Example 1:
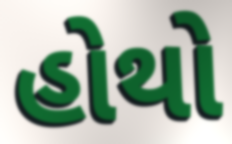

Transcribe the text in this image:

હોથો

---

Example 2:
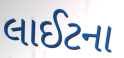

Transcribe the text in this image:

લાઈટના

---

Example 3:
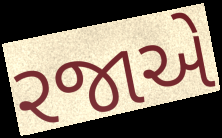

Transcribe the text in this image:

રજાએ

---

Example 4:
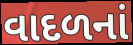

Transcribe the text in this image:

વાદળનાં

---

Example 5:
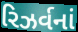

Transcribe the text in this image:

રિઝર્વનાં